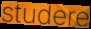
studere